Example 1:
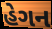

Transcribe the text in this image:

હેગન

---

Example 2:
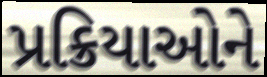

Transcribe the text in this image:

પ્રક્રિયાઓને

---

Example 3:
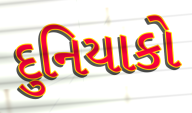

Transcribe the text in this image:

દુનિયાકો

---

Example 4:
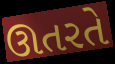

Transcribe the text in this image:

ઊતરતે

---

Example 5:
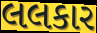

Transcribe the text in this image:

લલકાર